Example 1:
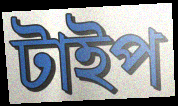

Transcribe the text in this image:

টাইপ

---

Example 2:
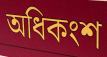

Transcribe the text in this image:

অধিকংশ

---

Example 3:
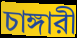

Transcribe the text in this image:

চাঙ্গারী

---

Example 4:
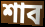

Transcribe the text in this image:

শাব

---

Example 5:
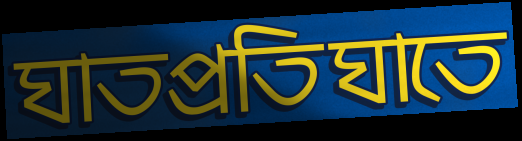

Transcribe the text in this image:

ঘাতপ্রতিঘাতে